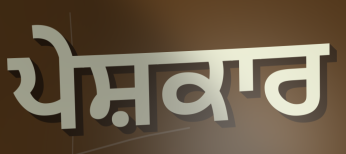
ਪੇਸ਼ਕਾਰ